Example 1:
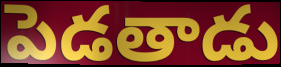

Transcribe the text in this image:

పెడతాడు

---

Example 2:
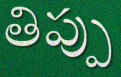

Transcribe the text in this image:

తిప్పు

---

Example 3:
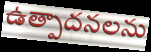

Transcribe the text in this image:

ఉత్పాదనలను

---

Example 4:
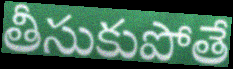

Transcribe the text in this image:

తీసుకుపోతే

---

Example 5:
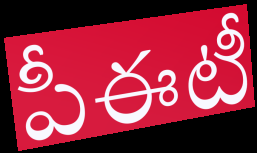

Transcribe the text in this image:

పీఈటీ